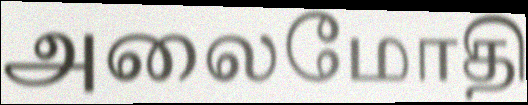
அலைமோதி